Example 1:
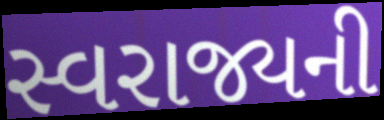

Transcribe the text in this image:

સ્વરાજ્યની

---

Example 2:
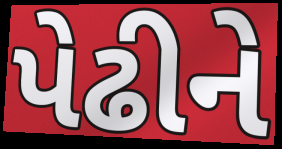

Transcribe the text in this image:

પેઢીને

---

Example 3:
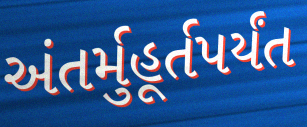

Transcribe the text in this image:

અંતર્મુહૂર્તપર્યંત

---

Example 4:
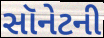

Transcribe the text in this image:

સૉનેટની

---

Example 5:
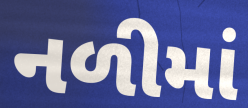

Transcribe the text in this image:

નળીમાં